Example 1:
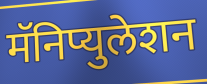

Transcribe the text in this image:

मॅनिप्युलेशन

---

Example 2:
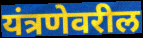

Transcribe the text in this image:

यंत्रणेवरील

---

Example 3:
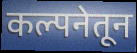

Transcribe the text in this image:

कल्पनेतून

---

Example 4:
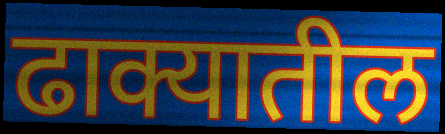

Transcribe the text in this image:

ढाक्यातील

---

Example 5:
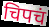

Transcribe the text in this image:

चिपचं